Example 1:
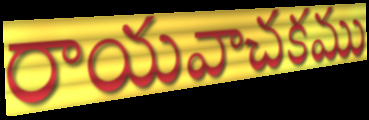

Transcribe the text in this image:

రాయవాచకము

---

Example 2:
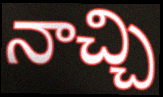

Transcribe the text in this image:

నాచ్చి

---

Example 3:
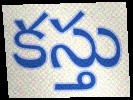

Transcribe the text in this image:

కస్తు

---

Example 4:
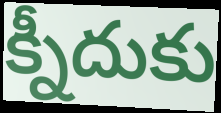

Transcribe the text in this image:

క్నీదుకు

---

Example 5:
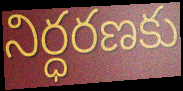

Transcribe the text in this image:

నిర్ధరణకు